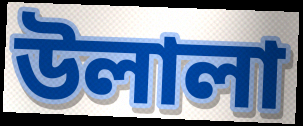
উলালা